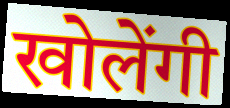
खोलेंगी